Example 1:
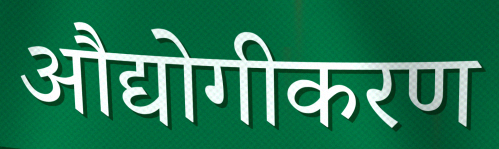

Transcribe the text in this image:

औद्योगीकरण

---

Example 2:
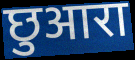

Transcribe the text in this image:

छुआरा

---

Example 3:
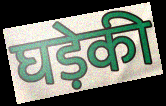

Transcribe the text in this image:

घड़ेकी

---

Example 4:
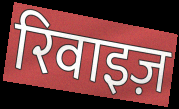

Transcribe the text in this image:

रिवाइज़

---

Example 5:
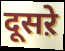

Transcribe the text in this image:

दूसऱे